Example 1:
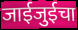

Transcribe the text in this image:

जाईजुईचा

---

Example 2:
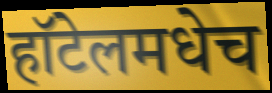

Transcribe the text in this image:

हॉटेलमधेच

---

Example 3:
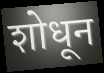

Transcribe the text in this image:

शोधून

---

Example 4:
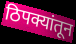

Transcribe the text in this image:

ठिपक्यांतून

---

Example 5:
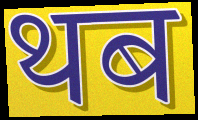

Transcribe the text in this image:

थब